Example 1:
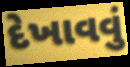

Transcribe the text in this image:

દેખાવવું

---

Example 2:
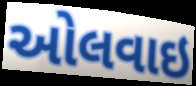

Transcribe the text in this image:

ઓલવાઇ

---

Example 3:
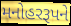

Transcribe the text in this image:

મનોહરરૂપને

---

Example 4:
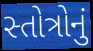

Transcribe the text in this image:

સ્તોત્રોનું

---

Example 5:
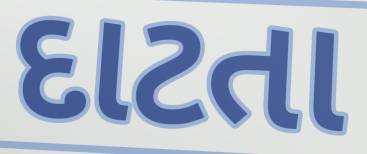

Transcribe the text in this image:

દાટતા